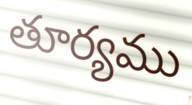
తూర్యము